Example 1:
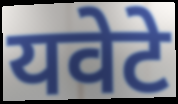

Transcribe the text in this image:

यवेटे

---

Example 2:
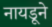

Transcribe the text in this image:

नायडूने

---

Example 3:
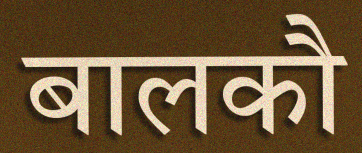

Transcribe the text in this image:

बालकौ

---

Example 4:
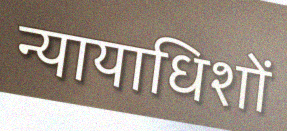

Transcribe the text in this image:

न्यायाधिशों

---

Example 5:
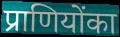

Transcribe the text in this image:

प्राणियोंका